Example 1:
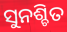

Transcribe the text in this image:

ସୁନଶ୍ଚିତ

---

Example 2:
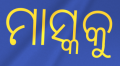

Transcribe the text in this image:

ମାସ୍କକୁ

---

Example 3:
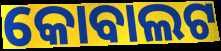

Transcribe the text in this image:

କୋବାଲଟ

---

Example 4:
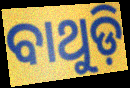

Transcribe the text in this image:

ବାଥୁଡ଼ି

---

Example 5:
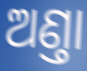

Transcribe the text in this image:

ଅଣ୍ତା